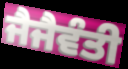
ਜੈਜੈਵੰਤੀ